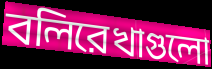
বলিরেখাগুলো